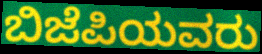
ಬಿಜೆಪಿಯವರು